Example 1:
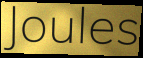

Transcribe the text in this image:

Joules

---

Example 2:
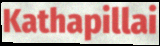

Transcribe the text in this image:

Kathapillai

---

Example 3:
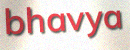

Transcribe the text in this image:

bhavya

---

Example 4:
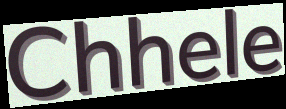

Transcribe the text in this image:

Chhele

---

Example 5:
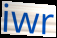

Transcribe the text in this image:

iwr